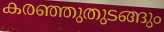
കരഞ്ഞുതുടങ്ങും